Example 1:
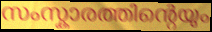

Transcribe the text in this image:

സംസ്കാരത്തിന്റെയും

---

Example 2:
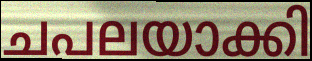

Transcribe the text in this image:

ചപലയാക്കി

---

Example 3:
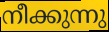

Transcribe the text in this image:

നീക്കുന്നു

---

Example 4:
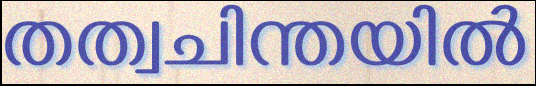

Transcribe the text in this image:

തത്വചിന്തയിൽ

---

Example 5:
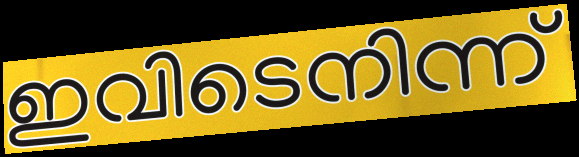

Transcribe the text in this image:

ഇവിടെനിന്ന്